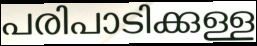
പരിപാടിക്കുള്ള